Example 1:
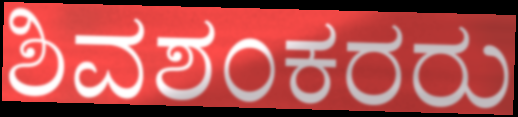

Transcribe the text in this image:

ಶಿವಶಂಕರರು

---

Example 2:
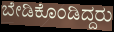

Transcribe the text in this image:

ಬೇಡಿಕೊಂಡಿದ್ದರು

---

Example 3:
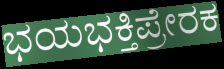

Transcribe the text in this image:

ಭಯಭಕ್ತಿಪ್ರೇರಕ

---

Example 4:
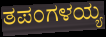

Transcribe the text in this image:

ತಪಂಗಳಯ್ಯ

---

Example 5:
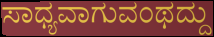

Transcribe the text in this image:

ಸಾಧ್ಯವಾಗುವಂಥದ್ದು